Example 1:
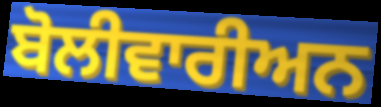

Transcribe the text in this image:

ਬੋਲੀਵਾਰੀਅਨ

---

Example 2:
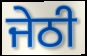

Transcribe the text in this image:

ਜੇਠੀ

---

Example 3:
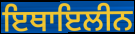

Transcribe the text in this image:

ਇਥਾਇਲੀਨ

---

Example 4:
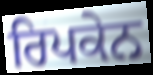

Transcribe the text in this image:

ਰਿਪਕੇਨ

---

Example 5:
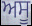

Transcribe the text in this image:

ਅਸੂ